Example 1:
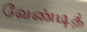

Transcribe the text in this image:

வேண்டித்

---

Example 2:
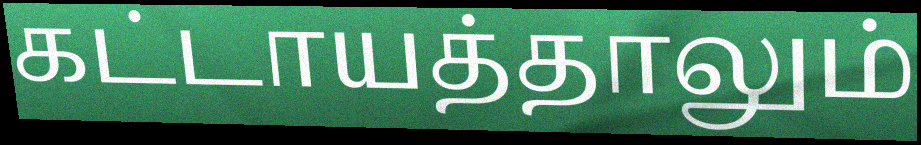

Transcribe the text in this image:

கட்டாயத்தாலும்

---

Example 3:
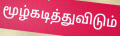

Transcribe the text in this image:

மூழ்கடித்துவிடும்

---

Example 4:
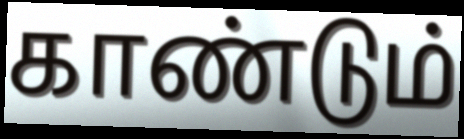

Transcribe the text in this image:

காண்டும்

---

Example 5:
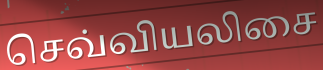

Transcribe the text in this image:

செவ்வியலிசை